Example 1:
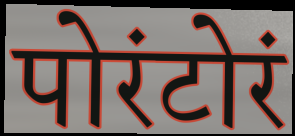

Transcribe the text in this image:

पोरंटोरं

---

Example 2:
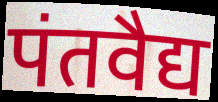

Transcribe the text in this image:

पंतवैद्य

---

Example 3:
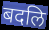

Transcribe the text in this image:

बदलि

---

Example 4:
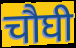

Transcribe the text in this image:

चौघी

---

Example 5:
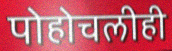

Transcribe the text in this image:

पोहोचलीही